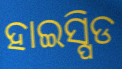
ହାଇସ୍ପିଡ